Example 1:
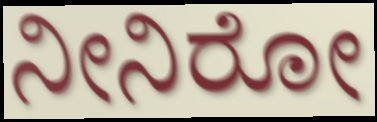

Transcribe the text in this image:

ನೀನಿರೋ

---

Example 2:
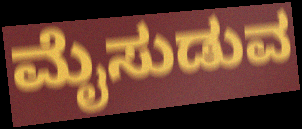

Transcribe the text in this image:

ಮೈಸುಡುವ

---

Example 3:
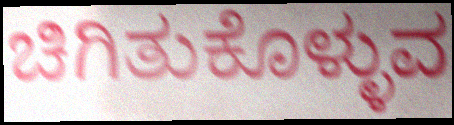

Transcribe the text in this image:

ಚಿಗಿತುಕೊಳ್ಳುವ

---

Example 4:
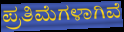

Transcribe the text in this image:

ಪ್ರತಿಮೆಗಳಾಗಿವೆ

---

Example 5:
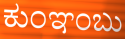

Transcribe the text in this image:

ಕುಂಞಂಬು